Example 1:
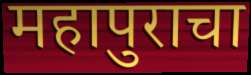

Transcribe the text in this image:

महापुराचा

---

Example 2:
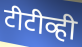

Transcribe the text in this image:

टीटीव्ही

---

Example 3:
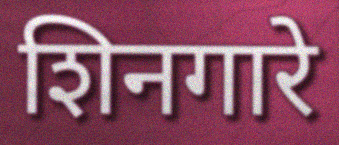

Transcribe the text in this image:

शिनगारे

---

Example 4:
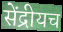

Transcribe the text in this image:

सेंद्रीयच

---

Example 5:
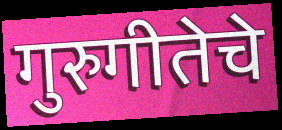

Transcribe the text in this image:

गुरुगीतेचे